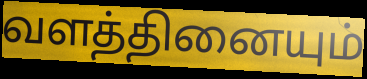
வளத்தினையும்